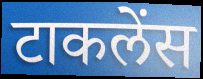
टाकलेंस